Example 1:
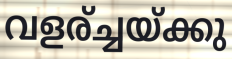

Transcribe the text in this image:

വളര്ച്ചയ്ക്കു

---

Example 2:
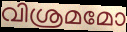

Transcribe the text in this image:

വിശ്രമമോ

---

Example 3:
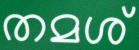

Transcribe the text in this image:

തമശ്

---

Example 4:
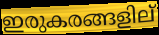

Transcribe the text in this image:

ഇരുകരങ്ങളില്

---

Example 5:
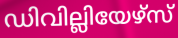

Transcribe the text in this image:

ഡിവില്ലിയേഴ്സ്